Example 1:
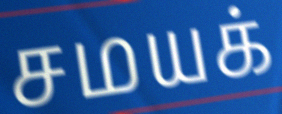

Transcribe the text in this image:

சமயக்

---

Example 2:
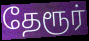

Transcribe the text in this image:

தேரூர்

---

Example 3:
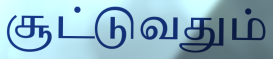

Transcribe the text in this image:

சூட்டுவதும்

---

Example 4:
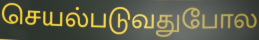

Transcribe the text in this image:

செயல்படுவதுபோல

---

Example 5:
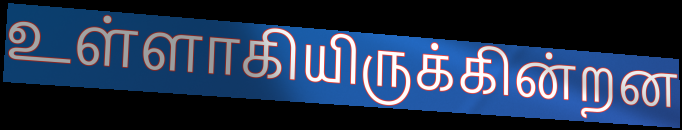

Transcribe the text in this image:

உள்ளாகியிருக்கின்றன